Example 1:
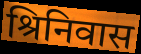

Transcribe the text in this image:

श्रिनिवास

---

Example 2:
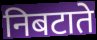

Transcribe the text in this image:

निबटाते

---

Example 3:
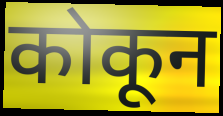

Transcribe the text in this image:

कोकून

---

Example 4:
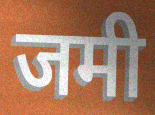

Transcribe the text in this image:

जमी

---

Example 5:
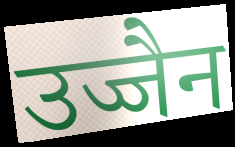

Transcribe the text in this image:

उज्जैन